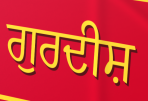
ਗੁਰਦੀਸ਼